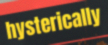
hysterically